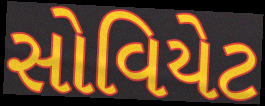
સોવિયેટ